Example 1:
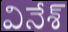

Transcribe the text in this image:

వినేశ్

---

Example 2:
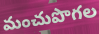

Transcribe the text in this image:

మంచుపొగల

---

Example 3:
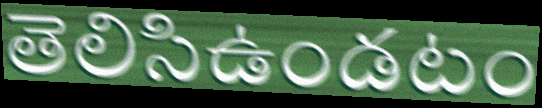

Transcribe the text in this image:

తెలిసిఉండటం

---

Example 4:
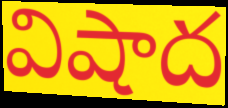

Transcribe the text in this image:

విషాద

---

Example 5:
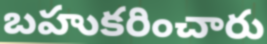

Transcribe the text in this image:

బహుకరించారు